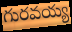
గురవయ్య